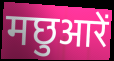
मछुआरें